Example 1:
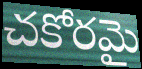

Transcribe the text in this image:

చకోరమై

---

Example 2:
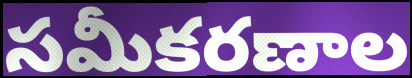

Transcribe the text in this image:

సమీకరణాల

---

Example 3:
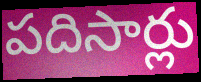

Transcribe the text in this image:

పదిసార్లు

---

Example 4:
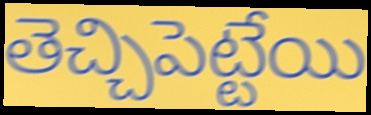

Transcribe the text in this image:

తెచ్చిపెట్టేయి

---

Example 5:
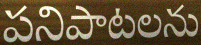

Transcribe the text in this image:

పనిపాటలను